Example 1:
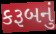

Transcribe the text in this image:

કરૂબનું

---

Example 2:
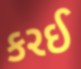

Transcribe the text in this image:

કરઈ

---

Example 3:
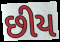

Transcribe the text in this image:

છીય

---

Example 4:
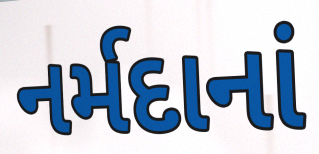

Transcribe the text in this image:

નર્મદાનાં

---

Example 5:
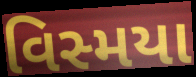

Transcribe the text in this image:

વિસ્મયા